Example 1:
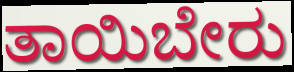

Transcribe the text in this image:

ತಾಯಿಬೇರು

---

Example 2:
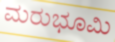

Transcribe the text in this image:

ಮರುಭೂಮಿ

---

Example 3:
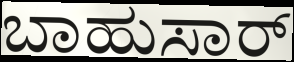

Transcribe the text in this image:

ಬಾಹುಸಾರ್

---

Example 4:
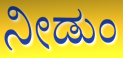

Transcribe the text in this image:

ನೀಡುಂ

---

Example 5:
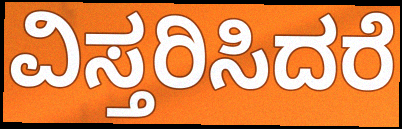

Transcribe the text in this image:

ವಿಸ್ತರಿಸಿದರೆ